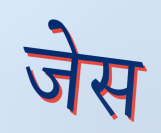
जेस